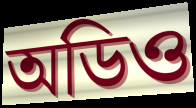
অডিও